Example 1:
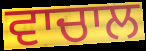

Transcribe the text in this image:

ਵਾਚਾਲ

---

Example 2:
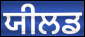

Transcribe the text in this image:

ਯੀਲਡ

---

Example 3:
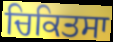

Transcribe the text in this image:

ਚਿਕਿਤਸਾ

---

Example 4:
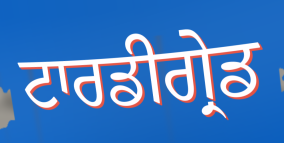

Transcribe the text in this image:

ਟਾਰਡੀਗ੍ਰੇਡ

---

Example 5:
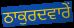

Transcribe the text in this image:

ਠਾਕੁਰਦਵਾਰੇਂ